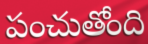
పంచుతోంది